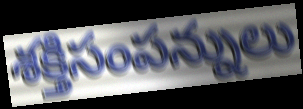
శక్తిసంపన్నులు